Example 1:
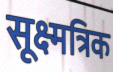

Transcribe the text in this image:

सूक्ष्मत्रिक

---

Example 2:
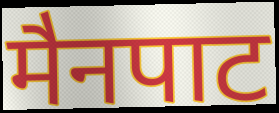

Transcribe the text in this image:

मैनपाट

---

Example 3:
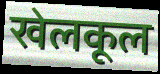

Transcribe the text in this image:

खेलकूल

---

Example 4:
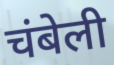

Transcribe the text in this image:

चंबेली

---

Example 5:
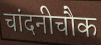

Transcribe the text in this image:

चांदनीचौक